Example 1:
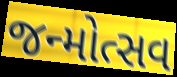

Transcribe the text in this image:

જન્મોત્સવ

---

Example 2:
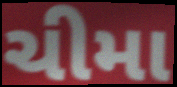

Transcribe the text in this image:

ચીમા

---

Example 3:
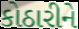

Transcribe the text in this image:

કોઠારીને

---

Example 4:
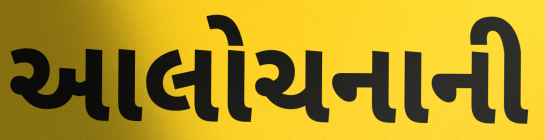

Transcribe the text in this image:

આલોચનાની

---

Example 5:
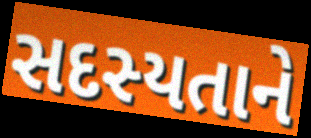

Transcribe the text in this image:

સદસ્યતાને